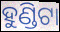
ହୁଣ୍ଡିଟା